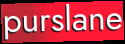
purslane